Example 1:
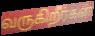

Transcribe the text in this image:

வருகிறீர்கள்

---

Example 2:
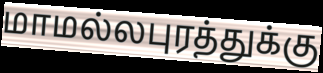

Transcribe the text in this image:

மாமல்லபுரத்துக்கு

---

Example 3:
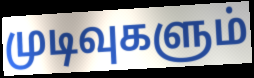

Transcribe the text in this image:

முடிவுகளும்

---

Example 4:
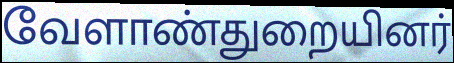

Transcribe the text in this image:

வேளாண்துறையினர்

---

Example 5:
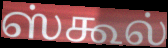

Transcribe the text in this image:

ஸ்கூல்